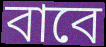
বাবে